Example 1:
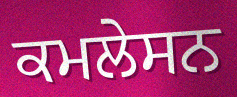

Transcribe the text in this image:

ਕਮਲੇਸਨ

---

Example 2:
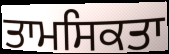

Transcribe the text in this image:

ਤਾਮਸਿਕਤਾ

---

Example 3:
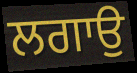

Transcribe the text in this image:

ਲਗਾਉੁ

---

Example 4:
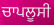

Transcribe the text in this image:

ਚਾਪਲੂਸੀ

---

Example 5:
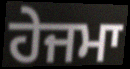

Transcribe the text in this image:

ਹੇਜਮਾ